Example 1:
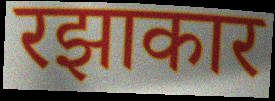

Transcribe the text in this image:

रझाकार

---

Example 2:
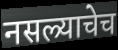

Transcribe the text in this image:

नसल्याचेच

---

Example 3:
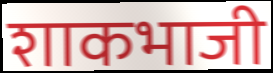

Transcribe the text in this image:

शाकभाजी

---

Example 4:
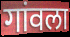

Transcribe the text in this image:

गांवला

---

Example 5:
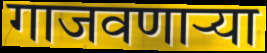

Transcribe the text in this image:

गाजवणाऱ्या